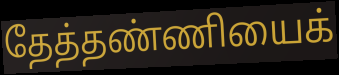
தேத்தண்ணியைக்